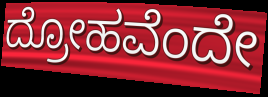
ದ್ರೋಹವೆಂದೇ